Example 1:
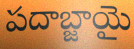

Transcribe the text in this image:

పదాబ్జాయై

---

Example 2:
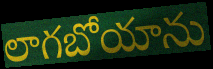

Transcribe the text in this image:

లాగబోయాను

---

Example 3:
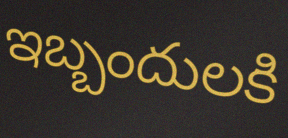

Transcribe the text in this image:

ఇబ్బందులకి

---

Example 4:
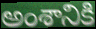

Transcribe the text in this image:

అంశానికి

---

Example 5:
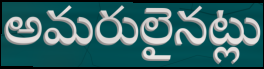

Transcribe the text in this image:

అమరులైనట్లు